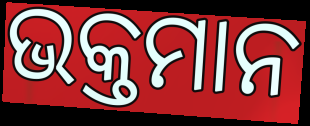
ଭକ୍ତମାନ